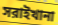
সরাইখানা